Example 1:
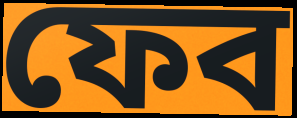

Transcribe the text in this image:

ফেব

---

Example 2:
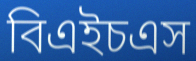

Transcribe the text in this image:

বিএইচএস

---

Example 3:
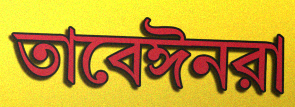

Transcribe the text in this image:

তাবেঈনরা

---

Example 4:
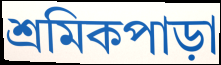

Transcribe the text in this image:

শ্রমিকপাড়া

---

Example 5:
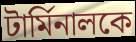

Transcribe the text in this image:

টার্মিনালকে